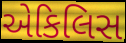
એકિલિસ